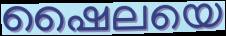
ഷൈലയെ